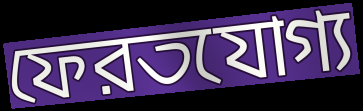
ফেরতযোগ্য